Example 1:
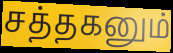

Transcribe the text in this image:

சத்தகனும்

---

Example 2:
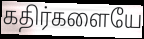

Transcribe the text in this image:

கதிர்களையே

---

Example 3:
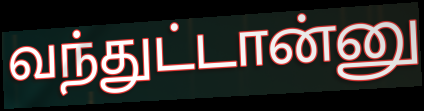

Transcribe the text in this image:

வந்துட்டான்னு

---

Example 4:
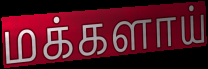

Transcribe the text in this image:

மக்களாய்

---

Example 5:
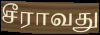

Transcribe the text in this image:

சீராவது